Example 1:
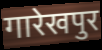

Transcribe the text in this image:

गारेखपुर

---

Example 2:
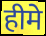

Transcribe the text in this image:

हीमे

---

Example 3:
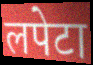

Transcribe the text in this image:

लपेटा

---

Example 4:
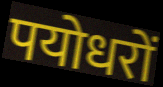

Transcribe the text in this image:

पयोधरों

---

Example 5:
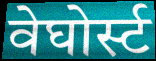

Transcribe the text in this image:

वेघोर्स्ट